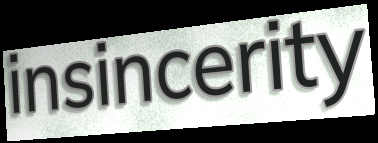
insincerity